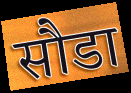
सौडा